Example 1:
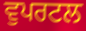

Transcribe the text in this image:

ਵੁਪਰਟਲ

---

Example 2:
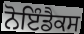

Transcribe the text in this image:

ਨੋਇੰਡੈਕਸ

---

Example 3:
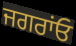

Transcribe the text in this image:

ਜਗਰਾਂਓ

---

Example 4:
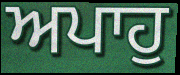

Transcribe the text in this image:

ਅਪਾਹੁ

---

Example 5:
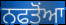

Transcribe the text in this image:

ਨਫਤੋਂਆ